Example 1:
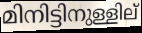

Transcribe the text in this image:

മിനിട്ടിനുള്ളില്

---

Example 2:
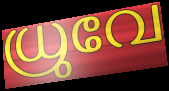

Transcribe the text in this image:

ധ്രുവേ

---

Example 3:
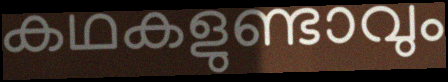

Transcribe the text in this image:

കഥകളുണ്ടാവും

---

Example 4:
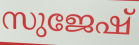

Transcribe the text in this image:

സുജേഷ്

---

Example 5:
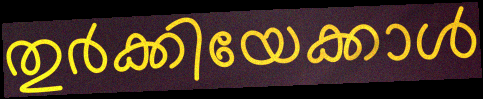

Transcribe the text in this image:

തുർക്കിയേക്കാൾ